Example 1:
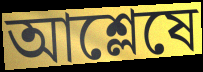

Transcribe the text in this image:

আশ্লেষে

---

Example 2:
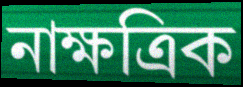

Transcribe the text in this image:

নাক্ষত্রিক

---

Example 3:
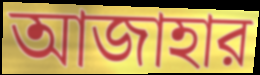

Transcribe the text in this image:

আজাহার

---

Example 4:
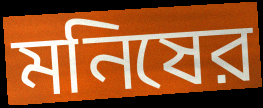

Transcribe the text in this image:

মনিষের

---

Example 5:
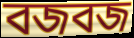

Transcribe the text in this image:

বজবজ